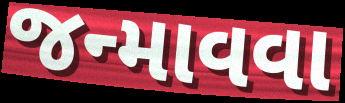
જન્માવવા